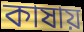
কাষায়